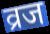
व्रज